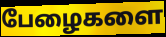
பேழைகளை